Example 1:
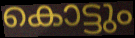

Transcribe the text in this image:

കൊട്ടും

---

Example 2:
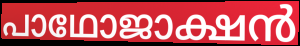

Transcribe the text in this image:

പാഥോജാക്ഷൻ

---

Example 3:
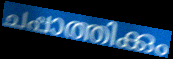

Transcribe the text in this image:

ചപ്പാത്തിക്കും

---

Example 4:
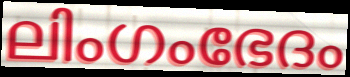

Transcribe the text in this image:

ലിംഗംഭേദം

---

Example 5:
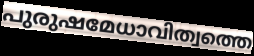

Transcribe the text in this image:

പുരുഷമേധാവിത്വത്തെ